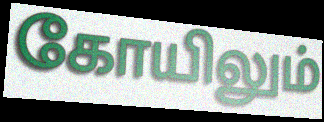
கோயிலும்